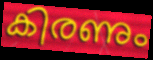
കിരണും